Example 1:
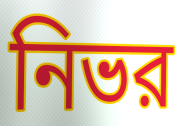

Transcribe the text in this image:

নিভর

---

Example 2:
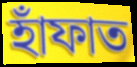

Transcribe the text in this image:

হাঁফাত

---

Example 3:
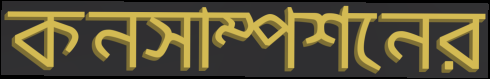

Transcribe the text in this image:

কনসাম্পশনের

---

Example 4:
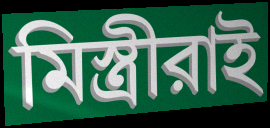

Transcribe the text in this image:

মিস্ত্রীরাই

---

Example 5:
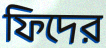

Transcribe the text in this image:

ফিদের